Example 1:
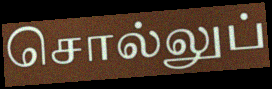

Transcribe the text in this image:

சொல்லுப்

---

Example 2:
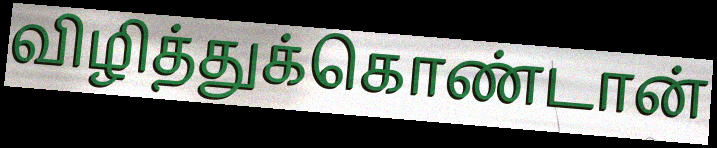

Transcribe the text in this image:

விழித்துக்கொண்டான்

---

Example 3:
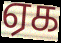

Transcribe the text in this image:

ஏக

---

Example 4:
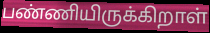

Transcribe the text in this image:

பண்ணியிருக்கிறாள்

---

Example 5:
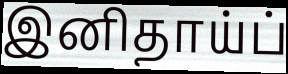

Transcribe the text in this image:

இனிதாய்ப்